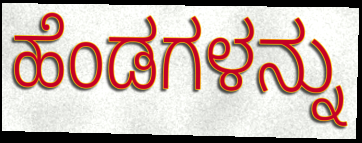
ಹೆಂಡಗಳನ್ನು